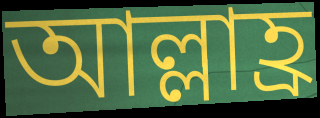
আল্লাহ্র